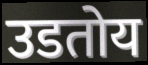
उडतोय